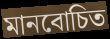
মানবোচিত